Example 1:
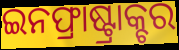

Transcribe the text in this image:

ଇନଫ୍ରାଷ୍ଟ୍ରାକ୍ଚର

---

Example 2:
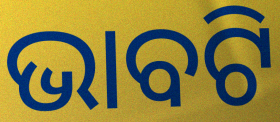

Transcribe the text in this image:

ଭାବଟି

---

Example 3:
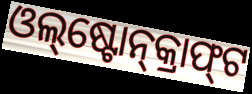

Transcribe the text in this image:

ଓଲ୍‌ଷ୍ଟୋନ୍‌କ୍ରାଫ୍‌ଟ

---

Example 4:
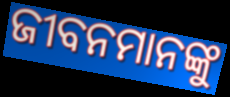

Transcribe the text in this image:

ଜୀବନମାନଙ୍କୁ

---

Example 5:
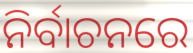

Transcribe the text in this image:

ନିର୍ବାଚନରେ